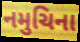
નમુચિના